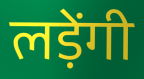
लड़ेंगी